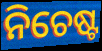
ନିଚେଷ୍ଟ